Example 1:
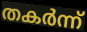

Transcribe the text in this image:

തകർന്ന്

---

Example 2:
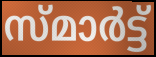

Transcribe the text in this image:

സ്മാർട്ട്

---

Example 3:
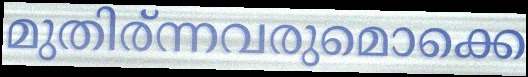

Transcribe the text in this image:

മുതിര്ന്നവരുമൊക്കെ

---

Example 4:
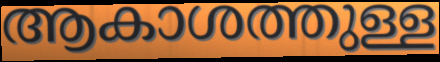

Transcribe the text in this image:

ആകാശത്തുള്ള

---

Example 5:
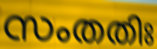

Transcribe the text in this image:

സംതതിഃ